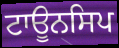
ਟਾਊਨਸਿਪ